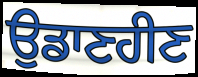
ਉਡਾਣਹੀਣ